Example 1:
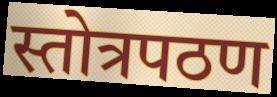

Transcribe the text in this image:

स्तोत्रपठण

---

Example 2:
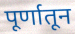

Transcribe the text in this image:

पूर्णातून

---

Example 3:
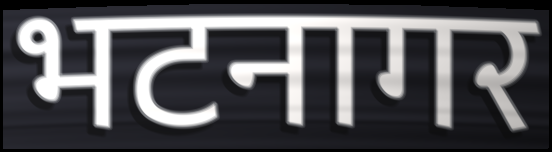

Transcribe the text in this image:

भटनागर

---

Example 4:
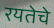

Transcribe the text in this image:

रयतेचे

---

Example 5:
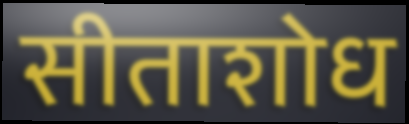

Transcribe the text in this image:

सीताशोध